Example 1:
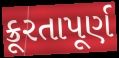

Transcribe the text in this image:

ક્રૂરતાપૂર્ણ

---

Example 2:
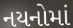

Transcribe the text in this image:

નયનોમાં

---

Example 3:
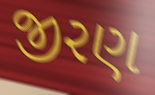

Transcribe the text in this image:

જીરણ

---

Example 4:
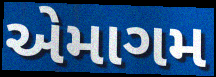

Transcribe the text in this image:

એમાગમ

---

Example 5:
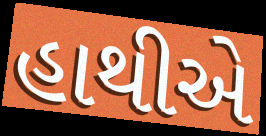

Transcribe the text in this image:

હાથીએ